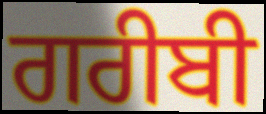
ਗਰੀਬੀ